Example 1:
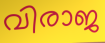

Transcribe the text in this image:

വിരാജ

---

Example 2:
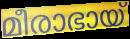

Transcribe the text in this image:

മീരാഭായ്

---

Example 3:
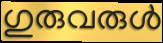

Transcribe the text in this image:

ഗുരുവരുൾ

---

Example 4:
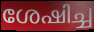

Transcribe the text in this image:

ശേഷിച്ച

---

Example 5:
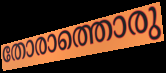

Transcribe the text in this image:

തോരാത്തൊരു